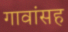
गावांसह